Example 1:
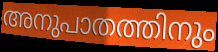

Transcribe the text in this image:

അനുപാതത്തിനും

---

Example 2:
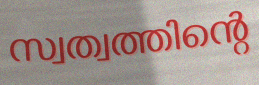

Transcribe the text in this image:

സ്വത്വത്തിന്റെ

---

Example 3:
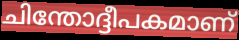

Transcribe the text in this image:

ചിന്തോദ്ദീപകമാണ്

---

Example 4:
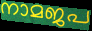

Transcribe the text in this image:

നാമജപ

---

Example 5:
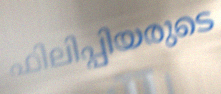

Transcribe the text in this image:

ഫിലിപ്പിയരുടെ